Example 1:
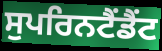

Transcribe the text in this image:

ਸੁਪਰਿਨਟੈਂਡੈਂਟ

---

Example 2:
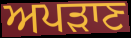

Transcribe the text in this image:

ਅਪੜਾਣ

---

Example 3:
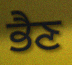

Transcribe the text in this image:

ਭੈਣ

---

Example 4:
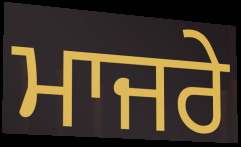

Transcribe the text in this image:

ਮਾਜਰੇ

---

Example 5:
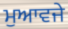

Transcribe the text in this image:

ਮੁਆਵਜੇ